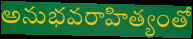
అనుభవరాహిత్యంతో